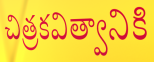
చిత్రకవిత్వానికి